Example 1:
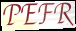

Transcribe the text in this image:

PEFR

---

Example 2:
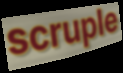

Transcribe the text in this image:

scruple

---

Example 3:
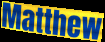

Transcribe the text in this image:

Matthew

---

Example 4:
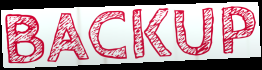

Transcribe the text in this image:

BACKUP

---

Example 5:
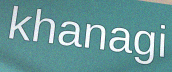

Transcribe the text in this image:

khanagi